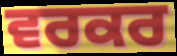
ਵਰਕਰ